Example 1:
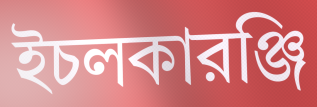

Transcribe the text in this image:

ইচলকারঞ্জি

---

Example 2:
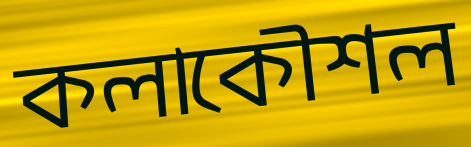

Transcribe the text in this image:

কলাকৌশল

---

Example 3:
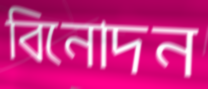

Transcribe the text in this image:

বিনোদন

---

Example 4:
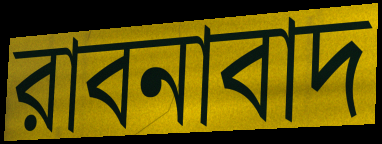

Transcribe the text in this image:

রাবনাবাদ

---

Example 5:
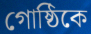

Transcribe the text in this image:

গোষ্ঠিকে